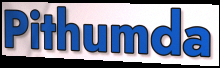
Pithumda